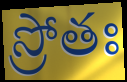
స్రోతః